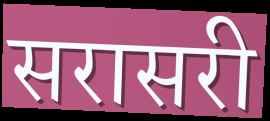
सरासरी